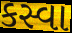
કસ્વા